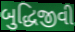
બુદ્ધિજીવી